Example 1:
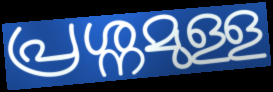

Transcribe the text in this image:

പ്രശ്നമുള്ള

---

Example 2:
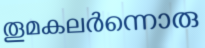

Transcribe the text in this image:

തൂമകലർന്നൊരു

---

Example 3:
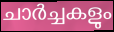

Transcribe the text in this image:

ചാർച്ചകളും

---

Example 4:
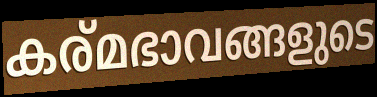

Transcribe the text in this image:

കര്മഭാവങ്ങളുടെ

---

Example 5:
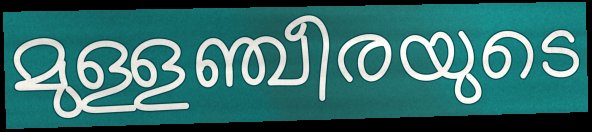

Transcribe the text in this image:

മുള്ളഞ്ചീരയുടെ